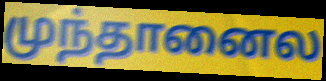
முந்தானைல